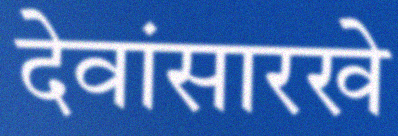
देवांसारखे